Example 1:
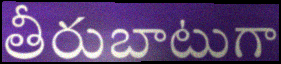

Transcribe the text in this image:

తీరుబాటుగా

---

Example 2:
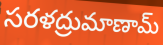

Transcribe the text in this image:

సరళద్రుమాణామ్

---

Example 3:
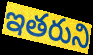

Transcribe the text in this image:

ఇతరుని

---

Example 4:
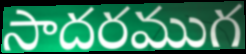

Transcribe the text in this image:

సాదరముగ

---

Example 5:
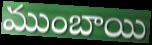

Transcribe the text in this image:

ముంబాయి